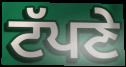
ਟੱਪਣੇ